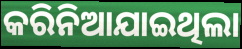
କରିନିଆଯାଇଥିଲା